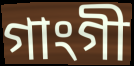
গাংগী